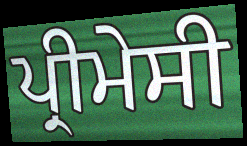
ਪ੍ਰੀਮੇਸੀ